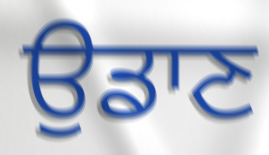
ਉਡਾਣ